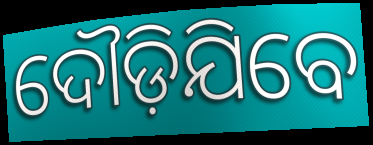
ଦୌଡ଼ିଯିବେ